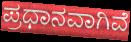
ಪ್ರಧಾನವಾಗಿವೆ